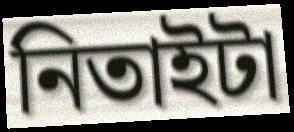
নিতাইটা